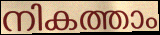
നികത്താം